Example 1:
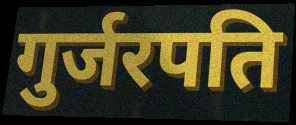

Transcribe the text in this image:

गुर्जरपति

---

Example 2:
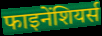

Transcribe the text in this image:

फाइनेंशियर्स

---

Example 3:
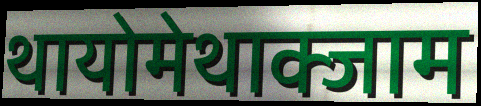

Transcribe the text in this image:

थायोमेथाक्जाम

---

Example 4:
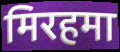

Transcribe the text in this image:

मिरहमा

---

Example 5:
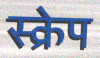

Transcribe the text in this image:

स्क्रेप